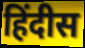
हिंदीस